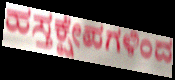
ಹಸ್ತಕ್ಷೇಪಗಳಿಂದ